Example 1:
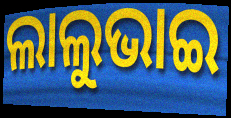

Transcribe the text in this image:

ଲାଲୁଭାଇ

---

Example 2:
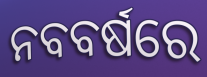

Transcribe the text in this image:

ନବବର୍ଷରେ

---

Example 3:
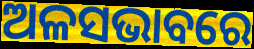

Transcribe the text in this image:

ଅଳସଭାବରେ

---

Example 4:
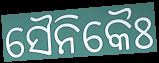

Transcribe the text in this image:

ସୈନିକୈଃ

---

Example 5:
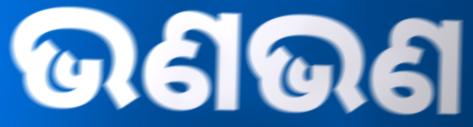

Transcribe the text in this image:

ଭଣଭଣ